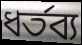
ধর্তব্য